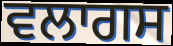
ਵਲਾਗਸ